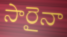
సారైనా